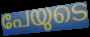
പേയുടെ